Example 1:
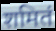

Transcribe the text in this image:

शमितं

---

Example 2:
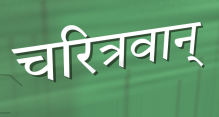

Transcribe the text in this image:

चरित्रवान्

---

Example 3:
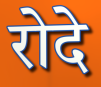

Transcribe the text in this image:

रोदे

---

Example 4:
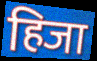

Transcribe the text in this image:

हिजा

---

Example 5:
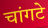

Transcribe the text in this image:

चांगटे